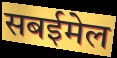
सबईमेल